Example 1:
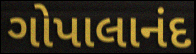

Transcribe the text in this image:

ગોપાલાનંદ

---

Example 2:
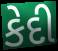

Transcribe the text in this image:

કેદી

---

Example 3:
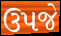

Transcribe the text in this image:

ઉપજે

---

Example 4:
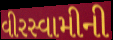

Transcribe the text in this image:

વીરસ્વામીની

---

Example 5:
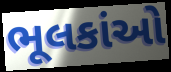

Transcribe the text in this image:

ભૂલકાંઓ